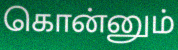
கொன்னும்